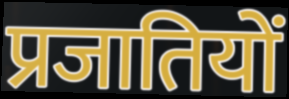
प्रजातियों